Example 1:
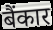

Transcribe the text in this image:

बैंकार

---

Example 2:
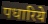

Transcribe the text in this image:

पधारिये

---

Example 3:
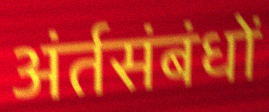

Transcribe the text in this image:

अंर्तसंबंधों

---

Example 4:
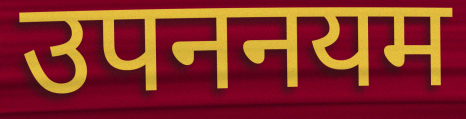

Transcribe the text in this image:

उपननयम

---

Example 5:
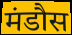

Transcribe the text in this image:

मंडौस